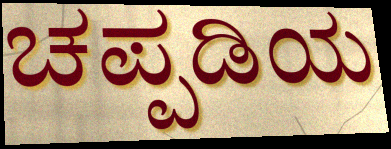
ಚಪ್ಪಡಿಯ